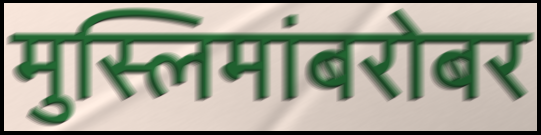
मुस्लिमांबरोबर